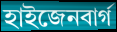
হাইজেনবার্গ